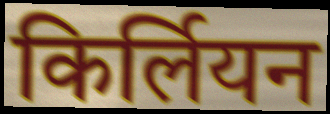
किर्लियन